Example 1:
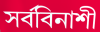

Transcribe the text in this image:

সর্ববিনাশী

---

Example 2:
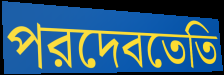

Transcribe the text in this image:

পরদেবতেতি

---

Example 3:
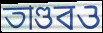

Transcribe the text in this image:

তাণ্ডবও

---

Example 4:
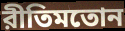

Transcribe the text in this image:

রীতিমতোন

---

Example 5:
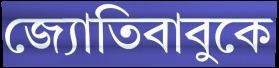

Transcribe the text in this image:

জ্যোতিবাবুকে